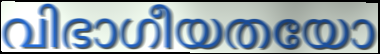
വിഭാഗീയതയോ